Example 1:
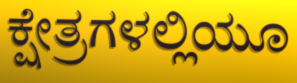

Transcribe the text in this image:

ಕ್ಷೇತ್ರಗಳಲ್ಲಿಯೂ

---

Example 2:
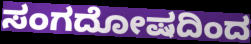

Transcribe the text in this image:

ಸಂಗದೋಷದಿಂದ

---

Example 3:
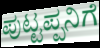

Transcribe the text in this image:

ಪುಟ್ಟಪ್ಪನಿಗೆ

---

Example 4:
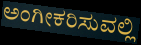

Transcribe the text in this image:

ಅಂಗೀಕರಿಸುವಲ್ಲಿ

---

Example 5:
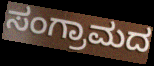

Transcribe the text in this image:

ಸಂಗ್ರಾಮದ